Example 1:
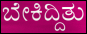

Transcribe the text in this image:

ಬೇಕಿದ್ದಿತು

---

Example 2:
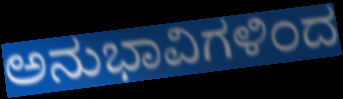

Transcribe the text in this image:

ಅನುಭಾವಿಗಳಿಂದ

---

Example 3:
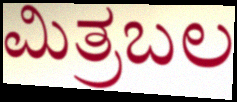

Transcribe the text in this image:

ಮಿತ್ರಬಲ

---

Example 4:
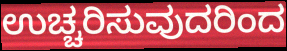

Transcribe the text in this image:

ಉಚ್ಚರಿಸುವುದರಿಂದ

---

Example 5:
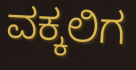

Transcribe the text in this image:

ವಕ್ಕಲಿಗ